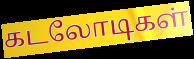
கடலோடிகள்